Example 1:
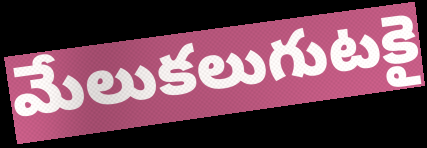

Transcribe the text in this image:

మేలుకలుగుటకై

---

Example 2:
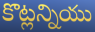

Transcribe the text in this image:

కొట్లన్నియు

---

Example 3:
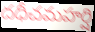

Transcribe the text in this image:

దధీచమహర్షి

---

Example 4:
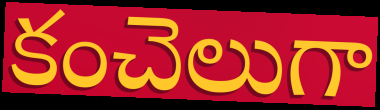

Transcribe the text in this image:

కంచెలుగా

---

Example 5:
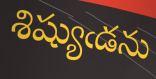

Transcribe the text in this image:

శిష్యుఁడను